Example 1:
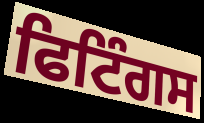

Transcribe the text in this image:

ਫਿਟਿੰਗਸ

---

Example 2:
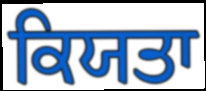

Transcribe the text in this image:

ਕਿਯਤਾ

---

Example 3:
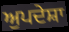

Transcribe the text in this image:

ਅੁਪਦੇਸ਼ਾ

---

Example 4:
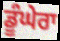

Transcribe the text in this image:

ਡੂੰਘੇਰਾ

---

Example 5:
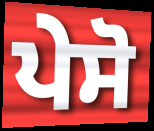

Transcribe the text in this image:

ਪੇਸੋ